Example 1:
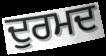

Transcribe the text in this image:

ਦੁਰਮਦ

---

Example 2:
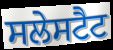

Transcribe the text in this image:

ਸਲੇਸਟੈਟ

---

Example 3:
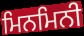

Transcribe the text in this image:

ਮਿਨਮਿਨੀ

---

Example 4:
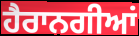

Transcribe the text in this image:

ਹੈਰਾਨਗੀਆਂ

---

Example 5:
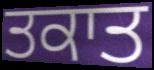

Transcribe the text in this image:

ਤਕਾਤ